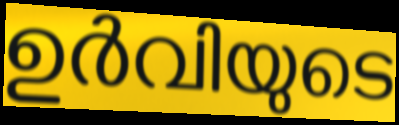
ഉർവിയുടെ